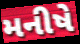
મનીષે